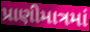
પ્રાણીમાત્રમાં